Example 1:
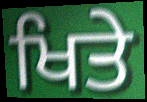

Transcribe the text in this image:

ਖਿਤੇ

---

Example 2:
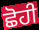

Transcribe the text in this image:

ਛੋਹੀ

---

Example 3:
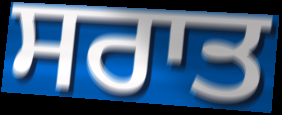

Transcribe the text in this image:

ਸਰਾਤ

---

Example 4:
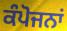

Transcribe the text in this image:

ਕੰਪੋਜਨਾਂ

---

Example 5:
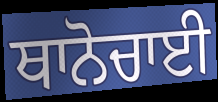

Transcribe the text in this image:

ਥਾਨੋਚਾਈ